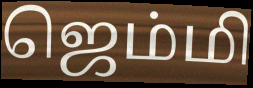
ஜெம்மி